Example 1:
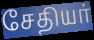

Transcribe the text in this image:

சேதியர்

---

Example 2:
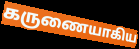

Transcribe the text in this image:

கருணையாகிய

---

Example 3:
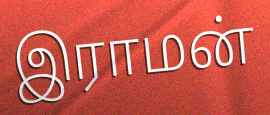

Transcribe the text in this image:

இராமன்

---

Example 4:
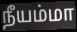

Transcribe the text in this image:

நீயம்மா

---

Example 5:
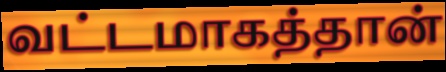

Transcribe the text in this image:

வட்டமாகத்தான்